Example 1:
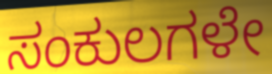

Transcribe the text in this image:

ಸಂಕುಲಗಳೇ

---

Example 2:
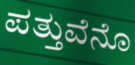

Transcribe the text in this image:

ಪತ್ತುವೆನೊ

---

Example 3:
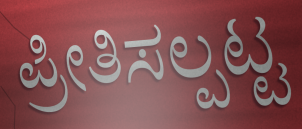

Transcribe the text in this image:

ಪ್ರೀತಿಸಲ್ಪಟ್ಟ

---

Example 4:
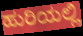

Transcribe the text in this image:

ಹುರಿಯಲ್ಲಿ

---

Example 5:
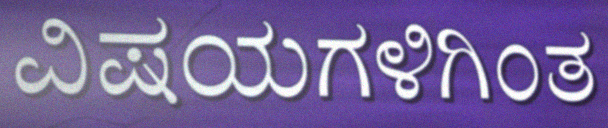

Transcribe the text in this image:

ವಿಷಯಗಳಿಗಿಂತ